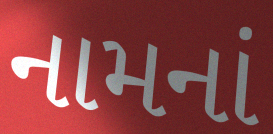
નામનાં